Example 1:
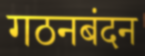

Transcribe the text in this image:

गठनबंदन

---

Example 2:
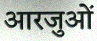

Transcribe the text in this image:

आरजुओं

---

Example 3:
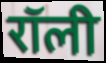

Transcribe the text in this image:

रॉली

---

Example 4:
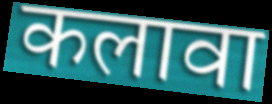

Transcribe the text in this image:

कलावा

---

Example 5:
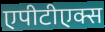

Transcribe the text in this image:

एपीटीएक्स